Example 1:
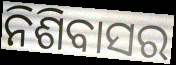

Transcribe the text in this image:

ନିଶିବାସର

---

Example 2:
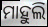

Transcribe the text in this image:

ମାହୁଲି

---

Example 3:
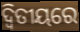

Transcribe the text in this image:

ଦ୍ଵିତୀୟରେ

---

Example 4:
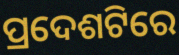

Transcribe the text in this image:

ପ୍ରଦେଶଟିରେ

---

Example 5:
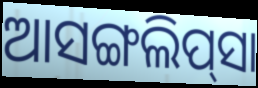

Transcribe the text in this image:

ଆସଙ୍ଗଲିପ୍‌ସା